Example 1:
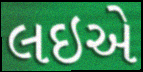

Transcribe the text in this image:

લઇએ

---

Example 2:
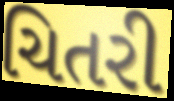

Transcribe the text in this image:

ચિતરી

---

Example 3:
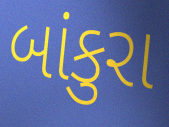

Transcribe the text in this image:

બાંકુરા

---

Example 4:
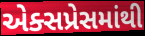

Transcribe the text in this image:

એક્સપ્રેસમાંથી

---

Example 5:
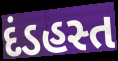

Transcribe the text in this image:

દંડહસ્ત